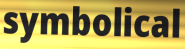
symbolical